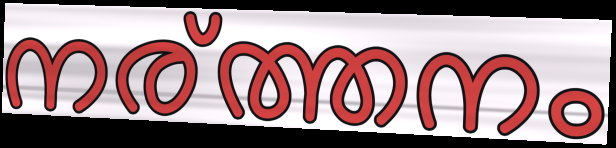
നര്ത്തനം